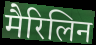
मैरिलिन